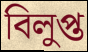
বিলুপ্ত